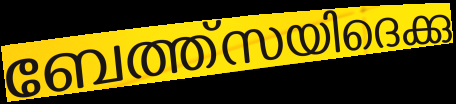
ബേത്ത്സയിദെക്കു